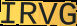
IRVG